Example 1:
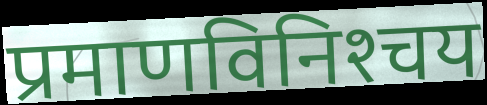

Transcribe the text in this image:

प्रमाणविनिश्चय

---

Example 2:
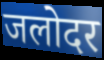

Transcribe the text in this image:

जलोदर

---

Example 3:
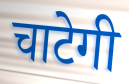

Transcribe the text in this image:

चाटेगी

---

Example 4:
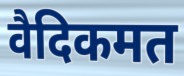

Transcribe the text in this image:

वैदिकमत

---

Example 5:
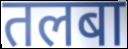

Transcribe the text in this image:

तलबा